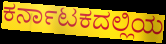
ಕರ್ನಾಟಕದಲ್ಲಿಯ